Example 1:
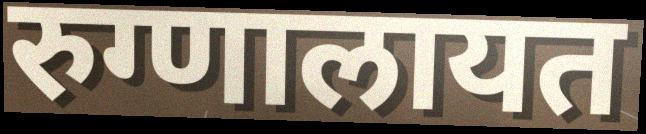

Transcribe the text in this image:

रुग्णालायत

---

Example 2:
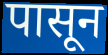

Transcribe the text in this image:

पासून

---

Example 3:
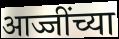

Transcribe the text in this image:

आज्जींच्या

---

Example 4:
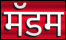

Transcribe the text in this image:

मॅडम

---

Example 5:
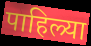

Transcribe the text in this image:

पाहिल्या